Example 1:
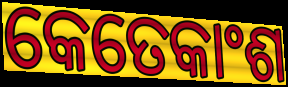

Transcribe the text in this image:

କେତେକାଂଶ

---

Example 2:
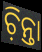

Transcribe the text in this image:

ଚ଼ିନ୍ତା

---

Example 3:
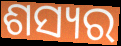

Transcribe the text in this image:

ଶସ୍ଯର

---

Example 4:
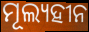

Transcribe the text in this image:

ମୂଲ୍ଯହୀନ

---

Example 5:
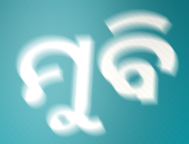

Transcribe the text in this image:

ମୁବି